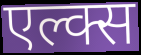
एल्क्स